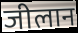
जीलान